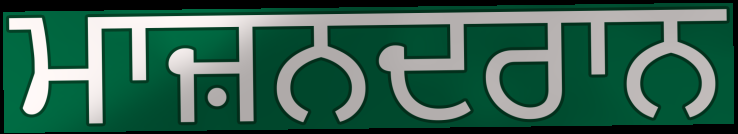
ਮਾਜ਼ਨਦਰਾਨ